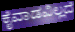
ಕೈವಾಡವಿಲ್ಲದೆ